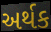
અર્થક